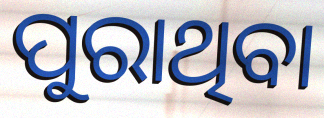
ପୁରାଥିବା